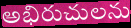
అభిరుచులను